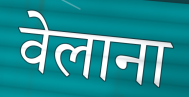
वेलाना